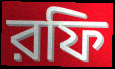
রফি